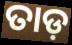
ତାଡ଼